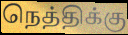
நெத்திக்கு